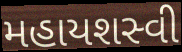
મહાયશસ્વી